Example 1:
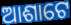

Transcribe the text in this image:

ଆଶାଟେ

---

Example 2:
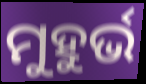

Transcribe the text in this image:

ମୁହୁର୍ଭ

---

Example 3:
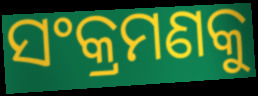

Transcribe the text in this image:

ସଂକ୍ରମଣକୁ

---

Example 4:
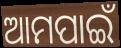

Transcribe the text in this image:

ଆମପାଇଁ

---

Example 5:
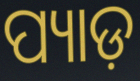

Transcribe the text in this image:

ପ୍ୟାଡ଼